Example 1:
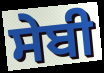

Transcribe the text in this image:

ਸੇਬੀ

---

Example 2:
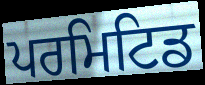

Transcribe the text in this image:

ਪਰਮਿਟਿਡ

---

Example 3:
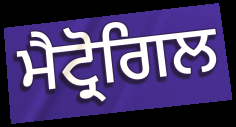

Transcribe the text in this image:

ਮੈਟ੍ਰੋਗਿਲ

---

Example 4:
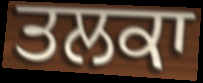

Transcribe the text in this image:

ਤਲਕਾ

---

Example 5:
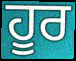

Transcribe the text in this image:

ਹੂਰ